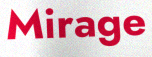
Mirage